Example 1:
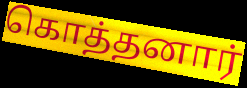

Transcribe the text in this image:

கொத்தனார்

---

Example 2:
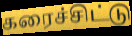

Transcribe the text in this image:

கரைச்சிட்டு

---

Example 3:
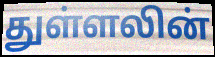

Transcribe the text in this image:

துள்ளலின்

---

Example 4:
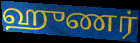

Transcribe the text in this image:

ஹுணர்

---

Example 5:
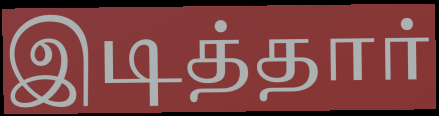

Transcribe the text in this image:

இடித்தார்